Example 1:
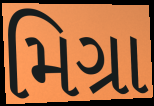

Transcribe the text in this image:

મિગ્રા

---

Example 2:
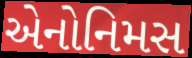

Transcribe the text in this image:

એનોનિમસ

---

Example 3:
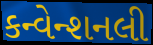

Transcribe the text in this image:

કન્વેન્શનલી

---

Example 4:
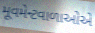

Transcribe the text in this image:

મૂવમેન્ટવાળાઓએ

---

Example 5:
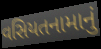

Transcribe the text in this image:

વસિયતનામાનું